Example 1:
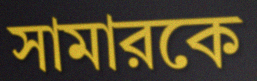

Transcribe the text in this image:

সামারকে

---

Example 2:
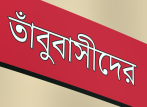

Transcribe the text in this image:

তাঁবুবাসীদের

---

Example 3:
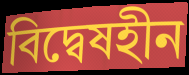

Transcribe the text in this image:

বিদ্বেষহীন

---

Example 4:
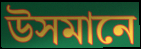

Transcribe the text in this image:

উসমানে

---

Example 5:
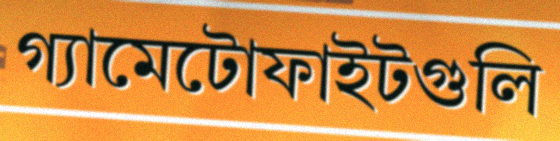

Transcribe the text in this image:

গ্যামেটোফাইটগুলি